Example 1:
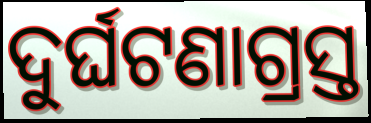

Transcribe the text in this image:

ଦୁର୍ଘଟଣାଗ୍ରସ୍ତ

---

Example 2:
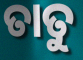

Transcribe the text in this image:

ତାତୁ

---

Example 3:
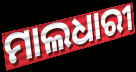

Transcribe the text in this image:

ମାଲଧାରୀ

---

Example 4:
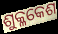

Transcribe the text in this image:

ଶୁକ୍ଳକେଶ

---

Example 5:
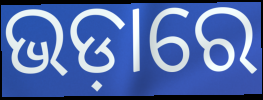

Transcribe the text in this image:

ଭଡ଼ାରେ